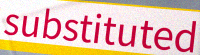
substituted